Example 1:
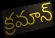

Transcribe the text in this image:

క్రమాన్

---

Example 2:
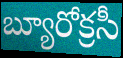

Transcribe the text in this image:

బ్యూరోక్రసీ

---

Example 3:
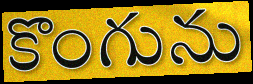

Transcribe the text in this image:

కొంగును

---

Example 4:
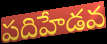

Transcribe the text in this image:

పదిహేడవ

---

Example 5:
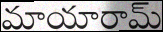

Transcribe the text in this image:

మాయారామ్